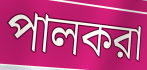
পালকরা